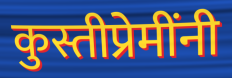
कुस्तीप्रेमींनी